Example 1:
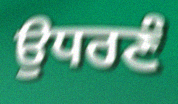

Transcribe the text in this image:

ਉਧਰਣੰ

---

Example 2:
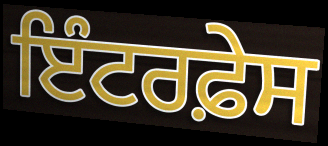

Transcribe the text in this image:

ਇੰਟਰਫ਼ੇਸ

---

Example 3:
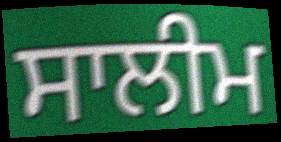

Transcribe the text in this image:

ਸਾਲੀਮ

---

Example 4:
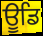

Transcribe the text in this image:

ਊਡਿ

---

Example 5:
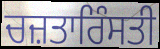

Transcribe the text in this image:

ਚਜ਼ਤਾਰਿੰਸਤੀ